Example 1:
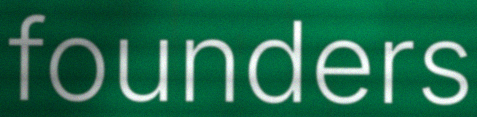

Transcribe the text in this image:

founders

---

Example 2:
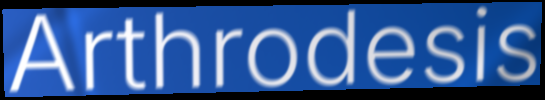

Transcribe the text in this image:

Arthrodesis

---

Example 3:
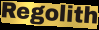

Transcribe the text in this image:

Regolith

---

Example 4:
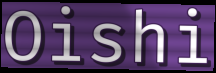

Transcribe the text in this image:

Oishi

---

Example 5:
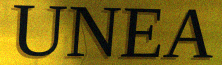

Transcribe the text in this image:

UNEA